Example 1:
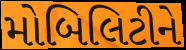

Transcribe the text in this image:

મોબિલિટીને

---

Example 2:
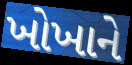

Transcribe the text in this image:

ખોખાને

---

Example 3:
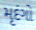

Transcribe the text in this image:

મૃદંગો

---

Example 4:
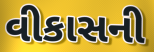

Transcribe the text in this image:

વીકાસની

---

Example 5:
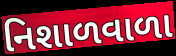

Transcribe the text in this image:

નિશાળવાળા